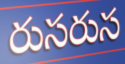
రుసరుస